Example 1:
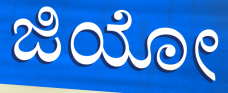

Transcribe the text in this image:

ಜಿಯೋ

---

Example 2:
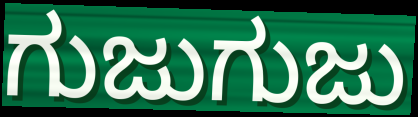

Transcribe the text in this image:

ಗುಜುಗುಜು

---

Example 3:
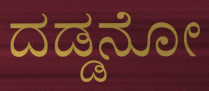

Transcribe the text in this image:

ದಡ್ಡನೋ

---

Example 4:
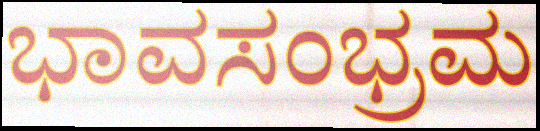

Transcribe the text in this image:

ಭಾವಸಂಭ್ರಮ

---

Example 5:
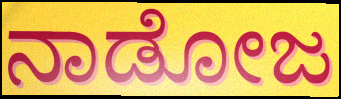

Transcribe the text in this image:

ನಾಡೋಜ